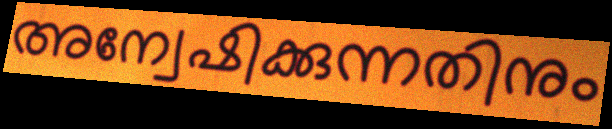
അന്വേഷിക്കുന്നതിനും